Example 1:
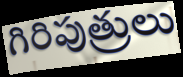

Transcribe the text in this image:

గిరిపుత్రులు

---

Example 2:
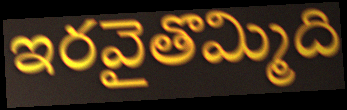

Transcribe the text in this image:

ఇరవైతొమ్మిది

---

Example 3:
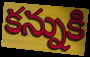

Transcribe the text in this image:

కన్నుకి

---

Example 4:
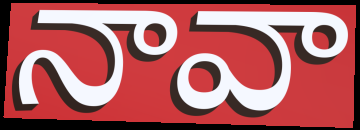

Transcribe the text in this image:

నావా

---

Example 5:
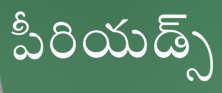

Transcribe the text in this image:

పీరియడ్స్